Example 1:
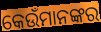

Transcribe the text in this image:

କେଉଁମାନଙ୍କର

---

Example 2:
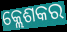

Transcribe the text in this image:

କ୍ଲେଶକର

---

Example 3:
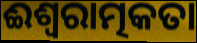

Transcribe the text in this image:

ଈଶ୍ଵରାତ୍ମକତା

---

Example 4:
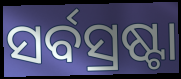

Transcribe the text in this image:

ସର୍ବସ୍ରଷ୍ଟା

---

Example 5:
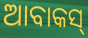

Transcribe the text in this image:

ଆବାକସ୍